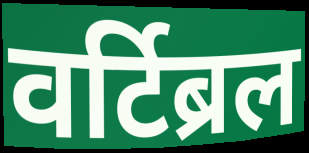
वर्टिब्रल